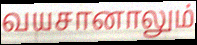
வயசானாலும்